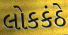
લોકકંઠે